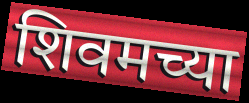
शिवमच्या